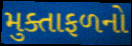
મુક્તાફળનો